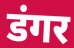
डंगर